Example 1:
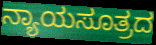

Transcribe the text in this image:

ನ್ಯಾಯಸೂತ್ರದ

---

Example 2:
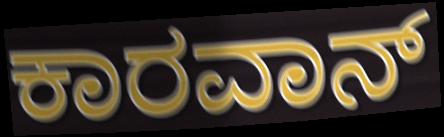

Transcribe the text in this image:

ಕಾರವಾನ್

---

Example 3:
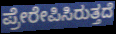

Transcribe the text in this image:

ಪ್ರೇರೇಪಿಸಿರುತ್ತದೆ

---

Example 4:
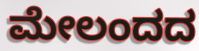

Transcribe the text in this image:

ಮೇಲಂದದ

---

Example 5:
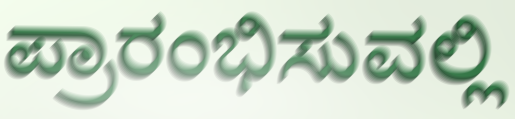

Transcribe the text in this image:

ಪ್ರಾರಂಭಿಸುವಲ್ಲಿ